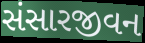
સંસારજીવન